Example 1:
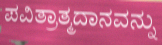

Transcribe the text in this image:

ಪವಿತ್ರಾತ್ಮದಾನವನ್ನು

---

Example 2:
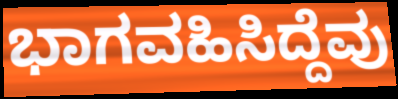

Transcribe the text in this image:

ಭಾಗವಹಿಸಿದ್ದೆವು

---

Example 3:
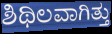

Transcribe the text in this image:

ಶಿಥಿಲವಾಗಿತ್ತು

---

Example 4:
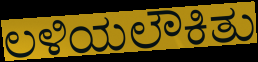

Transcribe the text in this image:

ಲಳಿಯಲೌಕಿತು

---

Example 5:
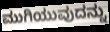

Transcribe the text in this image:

ಮುಗಿಯುವುದನ್ನು